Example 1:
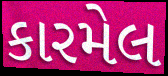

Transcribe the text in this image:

કારમેલ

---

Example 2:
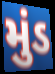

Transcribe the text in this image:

મુંડ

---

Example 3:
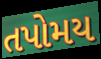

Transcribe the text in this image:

તપોમય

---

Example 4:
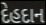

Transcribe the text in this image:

દેહદાન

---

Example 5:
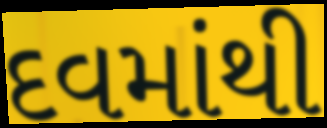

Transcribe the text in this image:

દવમાંથી